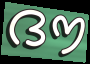
ദൗ